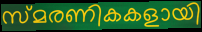
സ്മരണികകളായി